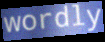
wordly